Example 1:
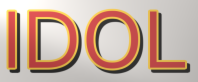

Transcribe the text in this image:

IDOL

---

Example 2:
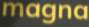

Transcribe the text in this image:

magna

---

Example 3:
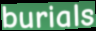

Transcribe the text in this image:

burials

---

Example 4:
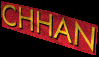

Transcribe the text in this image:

CHHAN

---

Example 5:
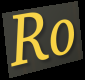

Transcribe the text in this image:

Ro